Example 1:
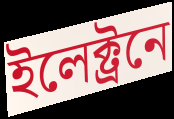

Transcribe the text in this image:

ইলেক্ট্ৰনে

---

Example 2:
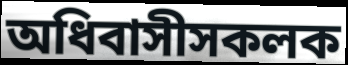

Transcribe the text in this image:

অধিবাসীসকলক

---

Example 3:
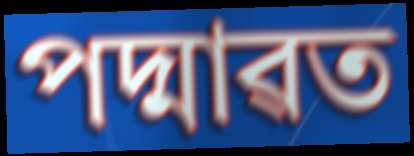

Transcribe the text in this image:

পদ্মাৱত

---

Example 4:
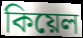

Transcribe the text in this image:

কিয়েল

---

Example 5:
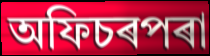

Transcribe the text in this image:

অফিচৰপৰা